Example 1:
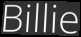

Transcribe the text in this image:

Billie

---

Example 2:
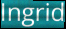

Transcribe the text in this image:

Ingrid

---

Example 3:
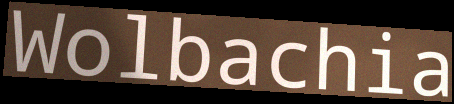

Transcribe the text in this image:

Wolbachia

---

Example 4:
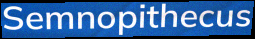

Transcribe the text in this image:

Semnopithecus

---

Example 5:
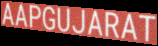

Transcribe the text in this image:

AAPGUJARAT